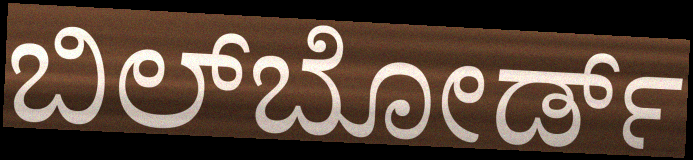
ಬಿಲ್‌ಬೋರ್ಡ್